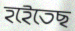
হইেতেছ